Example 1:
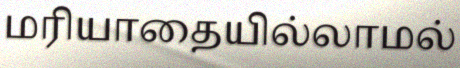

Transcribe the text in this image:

மரியாதையில்லாமல்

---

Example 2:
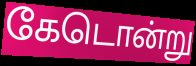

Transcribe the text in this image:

கேடொன்று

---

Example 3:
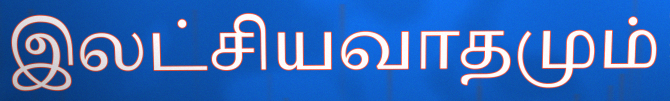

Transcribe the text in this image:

இலட்சியவாதமும்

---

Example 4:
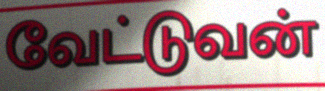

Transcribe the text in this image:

வேட்டுவன்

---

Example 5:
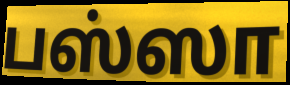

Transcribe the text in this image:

பஸ்ஸா